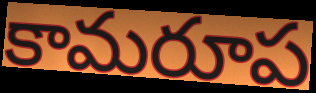
కామరూప